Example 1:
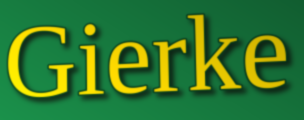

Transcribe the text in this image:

Gierke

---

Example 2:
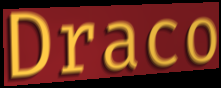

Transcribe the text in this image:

Draco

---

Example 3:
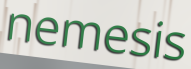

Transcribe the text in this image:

nemesis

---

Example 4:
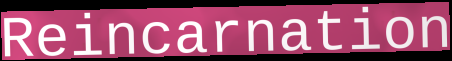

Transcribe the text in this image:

Reincarnation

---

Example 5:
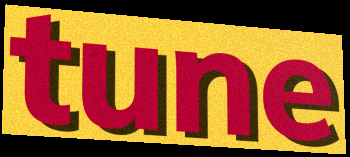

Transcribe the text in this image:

tune